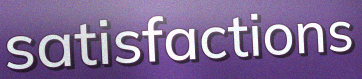
satisfactions